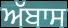
ਅੱਬਾਸ